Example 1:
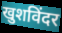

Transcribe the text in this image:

खुशविंदर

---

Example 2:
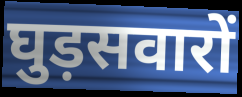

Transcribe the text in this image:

घुड़सवारों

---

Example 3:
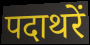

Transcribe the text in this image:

पदाथरें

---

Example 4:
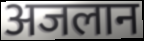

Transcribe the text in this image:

अजलान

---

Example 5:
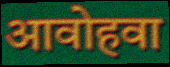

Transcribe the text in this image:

आवोहवा